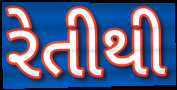
રેતીથી